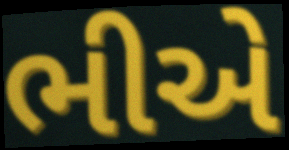
ભીએ